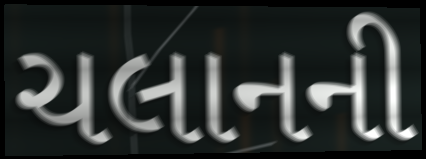
ચલાનની